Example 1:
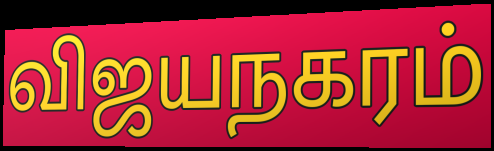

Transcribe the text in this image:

விஜயநகரம்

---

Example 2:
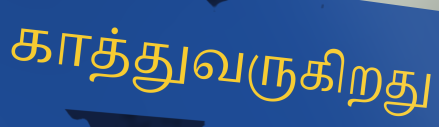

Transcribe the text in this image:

காத்துவருகிறது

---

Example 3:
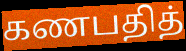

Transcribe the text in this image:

கணபதித்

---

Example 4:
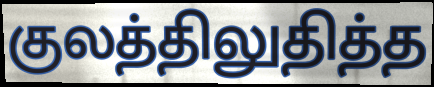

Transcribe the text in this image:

குலத்திலுதித்த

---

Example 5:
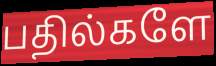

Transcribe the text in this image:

பதில்களே